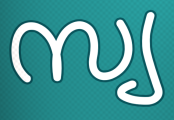
സ്യ